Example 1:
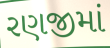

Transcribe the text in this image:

રણજીમાં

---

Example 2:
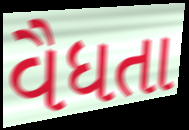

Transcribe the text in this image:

વૈધતા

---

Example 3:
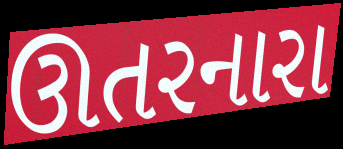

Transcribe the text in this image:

ઊતરનારા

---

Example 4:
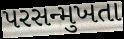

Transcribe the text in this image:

પરસન્મુખતા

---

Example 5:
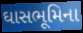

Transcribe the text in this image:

ઘાસભૂમિના